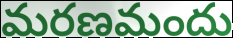
మరణమందు